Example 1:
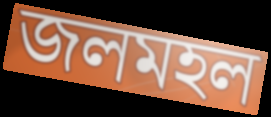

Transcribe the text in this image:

জলমহল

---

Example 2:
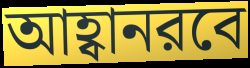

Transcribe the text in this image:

আহ্বানরবে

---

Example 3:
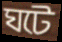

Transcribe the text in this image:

ঘটে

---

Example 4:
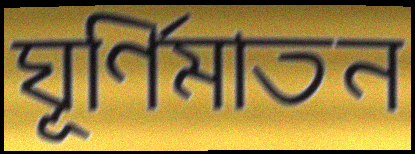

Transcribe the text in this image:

ঘূর্ণিমাতন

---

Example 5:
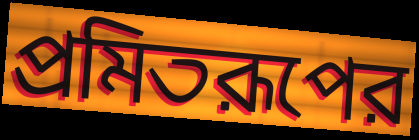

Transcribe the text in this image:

প্রমিতরূপের